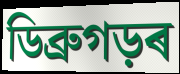
ডিব্ৰুগড়ৰ